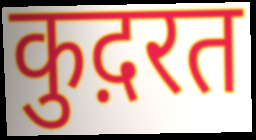
कुद़रत